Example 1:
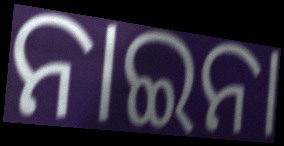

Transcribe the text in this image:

ନାଇନା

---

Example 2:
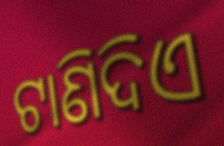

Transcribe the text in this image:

ଟାଣିଦିଏ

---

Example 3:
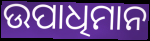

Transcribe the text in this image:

ଉପାଧିମାନ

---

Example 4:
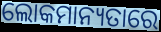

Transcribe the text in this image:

ଲୋକମାନ୍ୟତାରେ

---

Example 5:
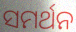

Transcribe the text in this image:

ସମର୍ଥନ